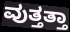
ವುತ್ತತ್ತಾ